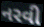
નરવી